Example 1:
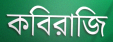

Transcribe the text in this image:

কবিরাজি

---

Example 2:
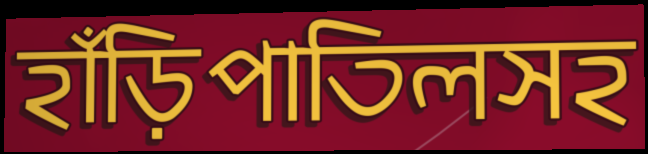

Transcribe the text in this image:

হাঁড়িপাতিলসহ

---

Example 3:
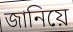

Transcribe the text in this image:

জানিয়ে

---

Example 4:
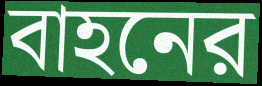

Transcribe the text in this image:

বাহনের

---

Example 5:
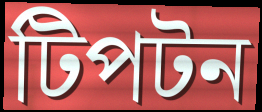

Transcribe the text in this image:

টিপটন